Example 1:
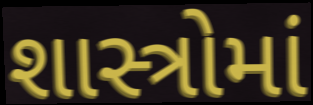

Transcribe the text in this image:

શાસ્ત્રોમાં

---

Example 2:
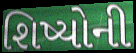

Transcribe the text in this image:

શિષ્યોની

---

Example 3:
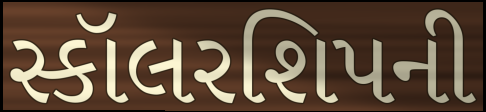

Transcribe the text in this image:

સ્કૉલરશિપની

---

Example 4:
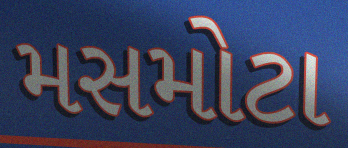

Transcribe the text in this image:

મસમોટા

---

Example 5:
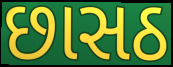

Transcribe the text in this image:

છાસઠ